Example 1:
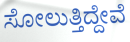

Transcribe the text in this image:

ಸೋಲುತ್ತಿದ್ದೇವೆ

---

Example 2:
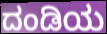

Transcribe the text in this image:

ದಂಡಿಯ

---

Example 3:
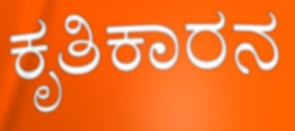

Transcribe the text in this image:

ಕೃತಿಕಾರನ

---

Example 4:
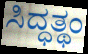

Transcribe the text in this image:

ಸಿದ್ಧತ್ಥಂ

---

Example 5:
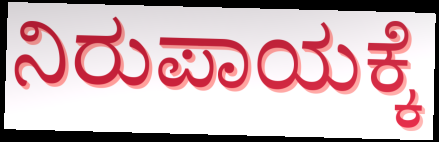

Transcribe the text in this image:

ನಿರುಪಾಯಕ್ಕೆ